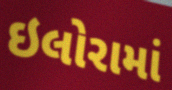
ઇલોરામાં